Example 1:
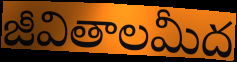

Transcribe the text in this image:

జీవితాలమీద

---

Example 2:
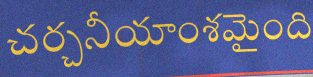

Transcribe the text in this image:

చర్చనీయాంశమైంది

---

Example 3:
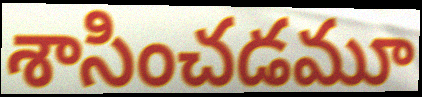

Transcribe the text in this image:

శాసించడమూ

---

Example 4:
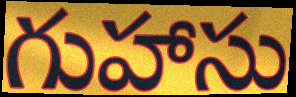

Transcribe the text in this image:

గుహాసు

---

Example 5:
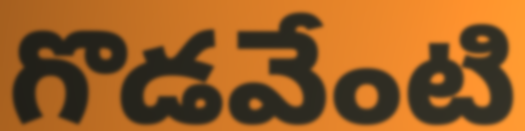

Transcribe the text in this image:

గొడవేంటి